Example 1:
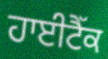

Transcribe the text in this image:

ਹਾਈਟੈੱਕ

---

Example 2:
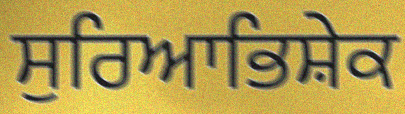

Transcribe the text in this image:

ਸੁਰਿਆਭਿਸ਼ੇਕ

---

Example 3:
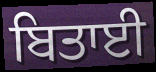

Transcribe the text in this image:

ਬਿਤਾਈ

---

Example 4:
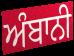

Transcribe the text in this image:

ਅੰਬਾਨੀ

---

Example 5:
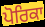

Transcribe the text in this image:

ਪੋਰਿਕਾ